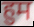
हुम